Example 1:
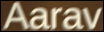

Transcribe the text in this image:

Aarav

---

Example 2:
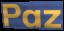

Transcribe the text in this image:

Paz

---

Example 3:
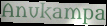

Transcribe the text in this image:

Anukampa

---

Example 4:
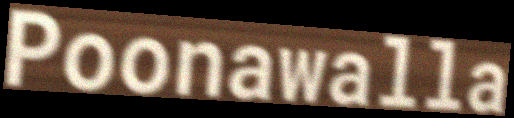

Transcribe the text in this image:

Poonawalla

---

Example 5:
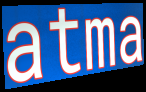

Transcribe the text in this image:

atma